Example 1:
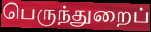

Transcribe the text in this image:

பெருந்துறைப்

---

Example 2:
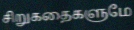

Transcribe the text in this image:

சிறுகதைகளுமே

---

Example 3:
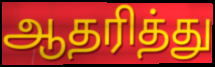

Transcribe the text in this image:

ஆதரித்து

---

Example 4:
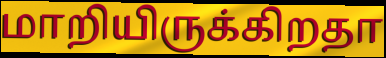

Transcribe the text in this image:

மாறியிருக்கிறதா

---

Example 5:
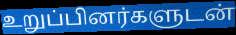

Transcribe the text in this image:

உறுப்பினர்களுடன்